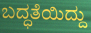
ಬದ್ಧತೆಯಿದ್ದು